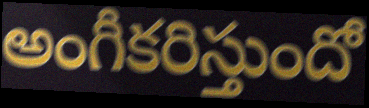
అంగీకరిస్తుందో